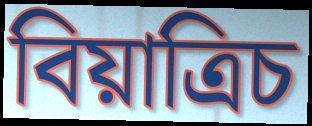
বিয়াত্রিচ